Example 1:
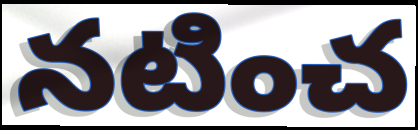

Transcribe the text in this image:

నటించ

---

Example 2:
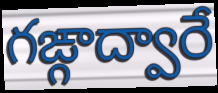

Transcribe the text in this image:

గఙ్గాద్వారే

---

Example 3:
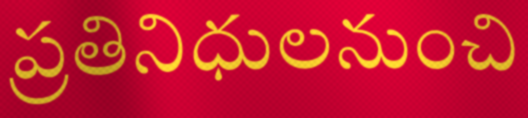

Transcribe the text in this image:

ప్రతినిధులనుంచి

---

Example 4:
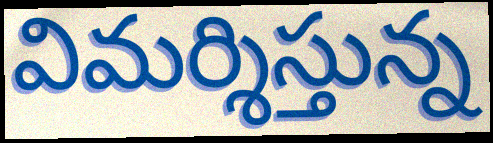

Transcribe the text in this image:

విమర్శిస్తున్న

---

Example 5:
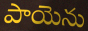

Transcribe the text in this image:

పాయెను